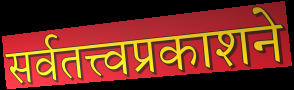
सर्वतत्त्वप्रकाशने